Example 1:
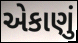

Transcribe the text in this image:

એકાણું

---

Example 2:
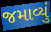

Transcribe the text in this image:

જમાવ્યું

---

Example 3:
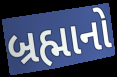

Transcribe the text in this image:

બ્રહ્માનો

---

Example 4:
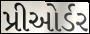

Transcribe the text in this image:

પ્રીઓર્ડર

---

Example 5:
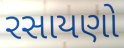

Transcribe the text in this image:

રસાયણો